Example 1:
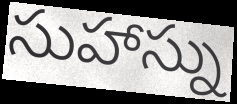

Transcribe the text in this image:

సుహాస్ను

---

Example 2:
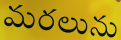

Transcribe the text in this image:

మరలును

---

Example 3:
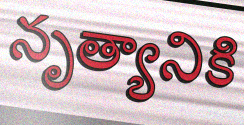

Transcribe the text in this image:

నృత్యానికి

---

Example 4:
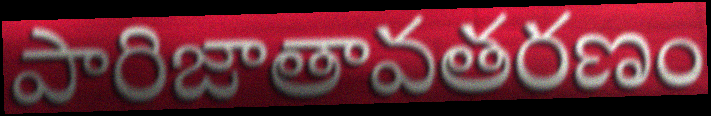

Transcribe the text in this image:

పారిజాతావతరణం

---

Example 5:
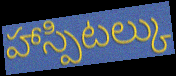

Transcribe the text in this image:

హాస్పిటల్కు